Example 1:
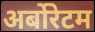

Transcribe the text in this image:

अर्बोरेटम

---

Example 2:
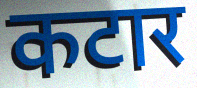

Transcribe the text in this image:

कटार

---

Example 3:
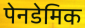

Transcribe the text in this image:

पेनडेमिक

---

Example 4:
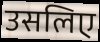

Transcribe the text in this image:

उसलिए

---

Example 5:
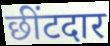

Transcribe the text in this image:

छींटदार